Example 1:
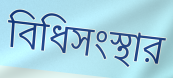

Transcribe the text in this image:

বিধিসংস্থার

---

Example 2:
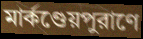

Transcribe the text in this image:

মার্কণ্ডেয়পুরাণে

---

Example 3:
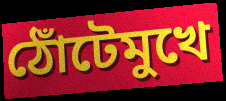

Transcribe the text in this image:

ঠোঁটেমুখে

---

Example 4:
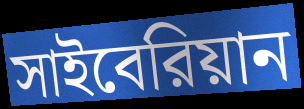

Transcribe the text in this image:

সাইবেরিয়ান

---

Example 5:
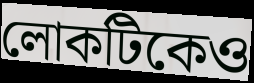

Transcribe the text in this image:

লোকটিকেও